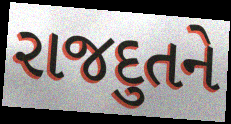
રાજદુતને